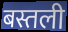
बस्तली